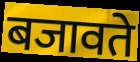
बजावते